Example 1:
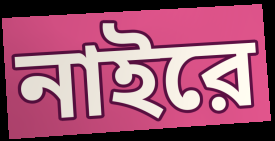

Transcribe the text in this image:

নাইরে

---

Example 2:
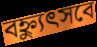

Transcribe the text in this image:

বহ্ন্যুৎসবে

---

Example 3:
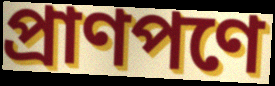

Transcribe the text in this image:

প্রাণপণে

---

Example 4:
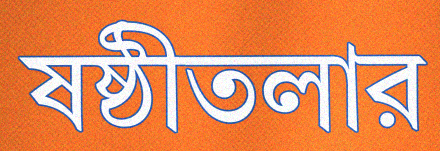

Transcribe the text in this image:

ষষ্ঠীতলার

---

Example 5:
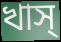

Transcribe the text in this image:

খাস্